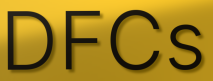
DFCs